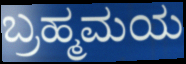
ಬ್ರಹ್ಮಮಯ